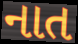
નાત